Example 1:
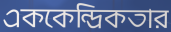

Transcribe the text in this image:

এককেন্দ্রিকতার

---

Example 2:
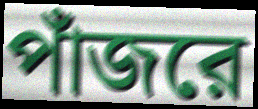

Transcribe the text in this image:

পাঁজরে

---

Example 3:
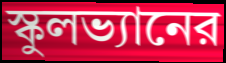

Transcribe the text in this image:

স্কুলভ্যানের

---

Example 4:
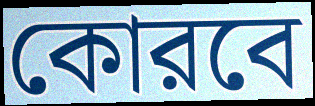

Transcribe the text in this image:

কোরবে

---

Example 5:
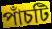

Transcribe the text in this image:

পাঁচটি